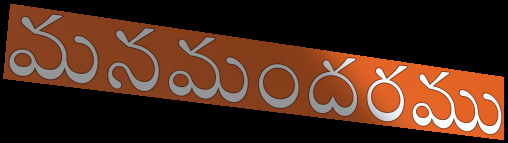
మనమందరము